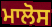
ਮਾਲੋਸ